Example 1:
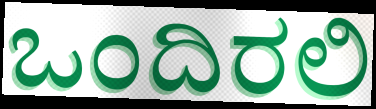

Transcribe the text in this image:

ಒಂದಿರಲಿ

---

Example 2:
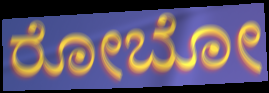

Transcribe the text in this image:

ರೋಬೋ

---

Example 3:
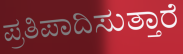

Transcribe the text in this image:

ಪ್ರತಿಪಾದಿಸುತ್ತಾರೆ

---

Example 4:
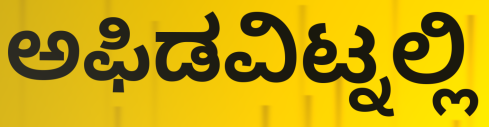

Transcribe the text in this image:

ಅಫಿಡವಿಟ್ನಲ್ಲಿ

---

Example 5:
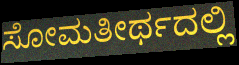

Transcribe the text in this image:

ಸೋಮತೀರ್ಥದಲ್ಲಿ